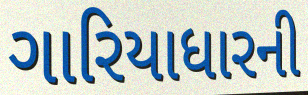
ગારિયાધારની